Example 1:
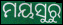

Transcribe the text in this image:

ମୟସୁରୁ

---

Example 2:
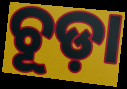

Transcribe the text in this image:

ଚୂଡ଼ା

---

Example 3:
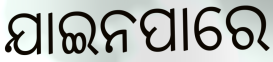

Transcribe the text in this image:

ଯାଇନପାରେ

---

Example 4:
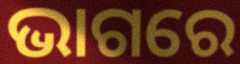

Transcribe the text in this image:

ଭାଗରେ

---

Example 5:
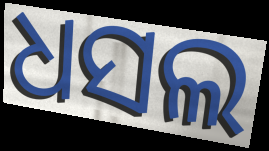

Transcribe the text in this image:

ଧସଲ